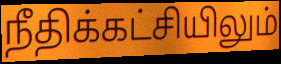
நீதிக்கட்சியிலும்